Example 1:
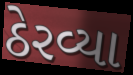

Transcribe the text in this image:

ઠેરવ્યા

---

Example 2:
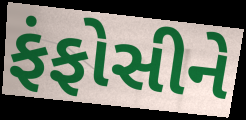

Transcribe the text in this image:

ફંફોસીને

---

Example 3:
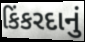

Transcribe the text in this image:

કિંકરદાનું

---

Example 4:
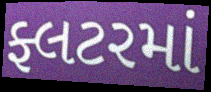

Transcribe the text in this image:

ફ્લટરમાં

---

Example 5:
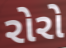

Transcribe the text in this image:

રોરો